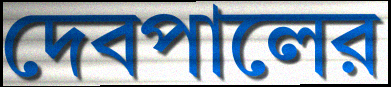
দেবপালের